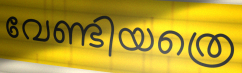
വേണ്ടിയത്രെ